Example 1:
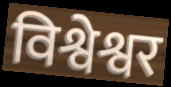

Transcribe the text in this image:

विश्वेश्वर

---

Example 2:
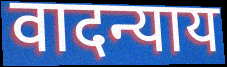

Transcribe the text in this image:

वादन्याय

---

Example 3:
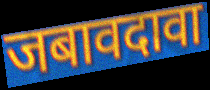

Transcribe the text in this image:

जबावदावा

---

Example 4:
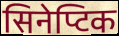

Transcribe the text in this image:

सिनेप्टिक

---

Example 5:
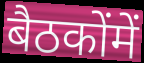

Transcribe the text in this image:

बैठकोंमें